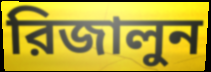
রিজালুন